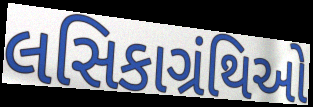
લસિકાગ્રંથિઓ